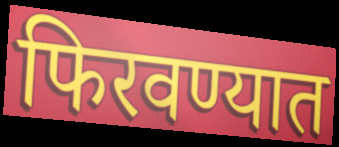
फिरवण्यात